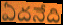
ఏదనేది